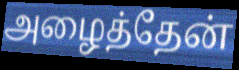
அழைத்தேன்